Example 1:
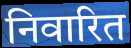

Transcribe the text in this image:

निवारित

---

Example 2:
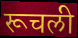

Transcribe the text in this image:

रूचली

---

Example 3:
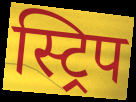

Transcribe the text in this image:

स्ट्रिप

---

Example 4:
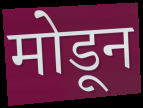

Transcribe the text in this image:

मोडून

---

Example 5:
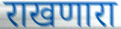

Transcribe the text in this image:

राखणारा